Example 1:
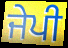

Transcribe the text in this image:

ਜੇਪੀ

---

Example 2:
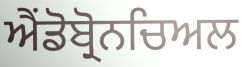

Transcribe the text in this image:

ਐਂਡੋਬ੍ਰੋਨਚਿਅਲ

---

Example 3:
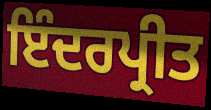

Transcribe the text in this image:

ਇੰਦਰਪ੍ਰੀਤ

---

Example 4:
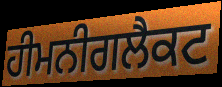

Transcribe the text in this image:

ਹੀਮਨੀਗਲੈਕਟ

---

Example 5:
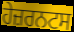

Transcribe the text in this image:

ਹੇਜ਼ਰਨਟਸ